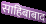
साहिबाबाद